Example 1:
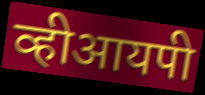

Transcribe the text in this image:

व्हीआयपी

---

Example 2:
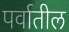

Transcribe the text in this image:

पर्वातील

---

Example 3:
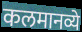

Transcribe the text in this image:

कलमानव्ये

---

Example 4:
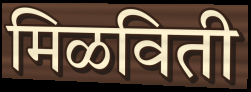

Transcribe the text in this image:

मिळविती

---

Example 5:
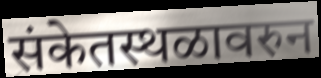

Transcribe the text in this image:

संकेतस्थळावरुन